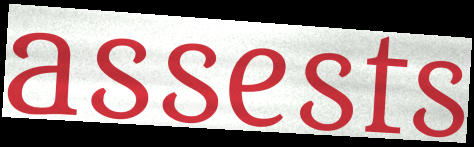
assests